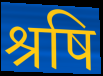
श्रषि